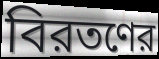
বিরতণের